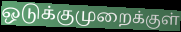
ஒடுக்குமுறைக்குள்